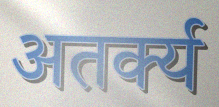
अतर्क्य